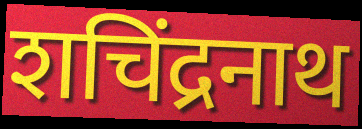
शचिंद्रनाथ